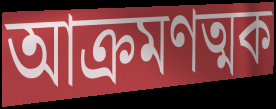
আক্রমণত্মক